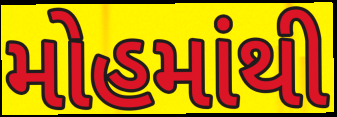
મોહમાંથી